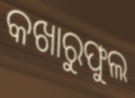
କଖାରୁଫୁଲ